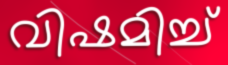
വിഷമിച്ച്